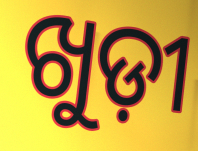
ଖୁଡ଼ୀ